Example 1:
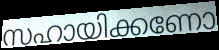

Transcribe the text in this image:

സഹായിക്കണോ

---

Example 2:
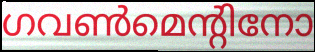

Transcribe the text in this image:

ഗവൺമെന്റിനോ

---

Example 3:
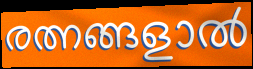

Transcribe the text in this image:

രത്നങ്ങളാൽ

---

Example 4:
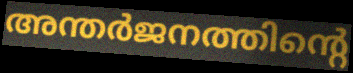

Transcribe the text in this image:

അന്തർജനത്തിന്റെ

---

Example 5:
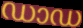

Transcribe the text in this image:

ഡാഡ